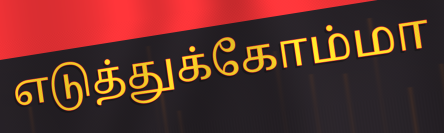
எடுத்துக்கோம்மா